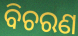
ବିଚରଣ